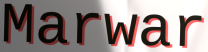
Marwar